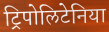
ट्रिपोलिटेनिया